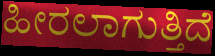
ಹೀರಲಾಗುತ್ತಿದೆ